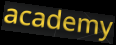
academy